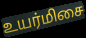
உயர்மிசை